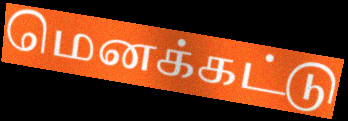
மெனக்கட்டு